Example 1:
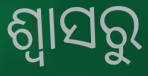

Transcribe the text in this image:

ଶ୍ୱାସରୁ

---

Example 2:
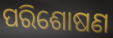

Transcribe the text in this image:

ପରିଶୋଷଣ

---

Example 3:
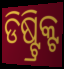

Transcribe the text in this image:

ଡିଷ୍ଟ୍ରିକ୍ଟ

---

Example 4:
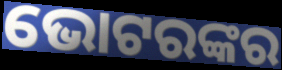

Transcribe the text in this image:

ଭୋଟରଙ୍କର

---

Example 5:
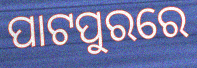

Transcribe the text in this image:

ପାଟପୁରରେ